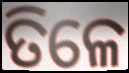
ତିଳେ